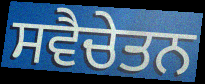
ਸਵੈਚੇਤਨ